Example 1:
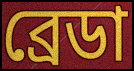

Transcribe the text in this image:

ব্রেডা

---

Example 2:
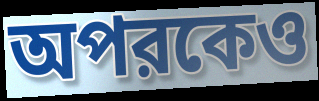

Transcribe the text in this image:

অপরকেও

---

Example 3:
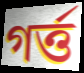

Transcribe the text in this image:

গর্ত্ত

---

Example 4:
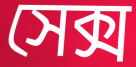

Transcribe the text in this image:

সেক্স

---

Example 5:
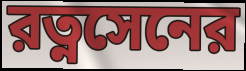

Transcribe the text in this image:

রত্নসেনের